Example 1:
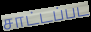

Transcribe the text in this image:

சாட்டப்பட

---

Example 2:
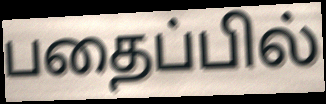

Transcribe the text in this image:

பதைப்பில்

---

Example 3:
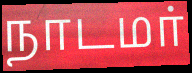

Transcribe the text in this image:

நாடமர்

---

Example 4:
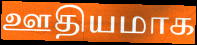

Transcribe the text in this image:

ஊதியமாக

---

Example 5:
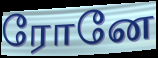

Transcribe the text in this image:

ரோனே